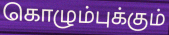
கொழும்புக்கும்